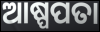
ଆଷ୍ପପତା